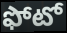
ఫోటో